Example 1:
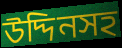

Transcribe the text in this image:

উদ্দিনসহ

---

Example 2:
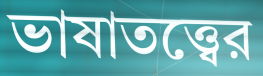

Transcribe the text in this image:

ভাষাতত্ত্বের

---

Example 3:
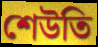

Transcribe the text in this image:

শেউতি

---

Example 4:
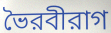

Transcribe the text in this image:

ভৈরবীরাগ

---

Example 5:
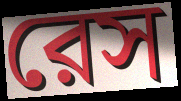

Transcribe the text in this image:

রেস